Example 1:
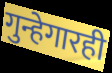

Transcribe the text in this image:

गुन्हेगारही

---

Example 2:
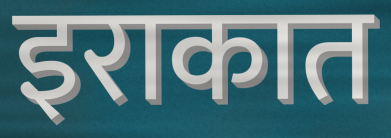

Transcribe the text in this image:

इराकात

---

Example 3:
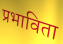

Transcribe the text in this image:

प्रभाविता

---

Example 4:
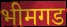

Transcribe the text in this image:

भीमगड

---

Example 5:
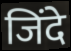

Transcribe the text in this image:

जिंदे